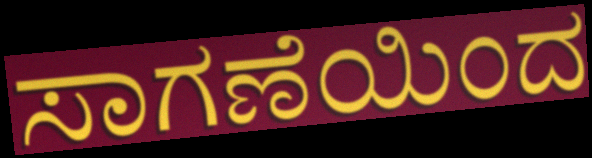
ಸಾಗಣೆಯಿಂದ